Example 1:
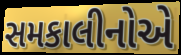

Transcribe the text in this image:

સમકાલીનોએ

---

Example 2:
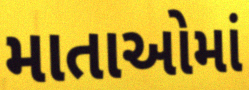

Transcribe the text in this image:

માતાઓમાં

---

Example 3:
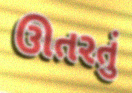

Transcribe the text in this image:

ઊતરતું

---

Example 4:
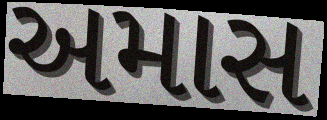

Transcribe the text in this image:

અમાસ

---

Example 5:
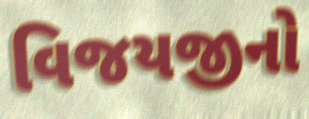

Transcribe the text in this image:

વિજયજીનો